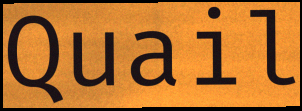
Quail